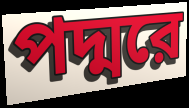
পদ্মরে